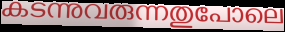
കടന്നുവരുന്നതുപോലെ